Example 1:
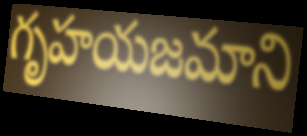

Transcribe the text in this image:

గృహయజమాని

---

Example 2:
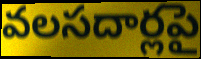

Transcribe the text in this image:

వలసదార్లపై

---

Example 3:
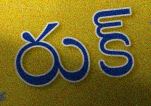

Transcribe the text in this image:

రుక్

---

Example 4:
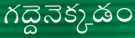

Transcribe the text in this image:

గద్దెనెక్కడం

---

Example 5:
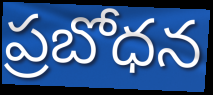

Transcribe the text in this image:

ప్రబోధన